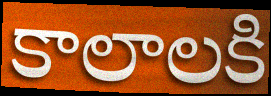
కాలాలకి